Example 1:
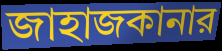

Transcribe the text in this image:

জাহাজকানার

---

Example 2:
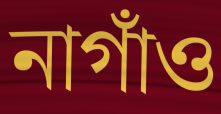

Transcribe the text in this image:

নাগাঁও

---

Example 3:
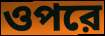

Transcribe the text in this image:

ওপরে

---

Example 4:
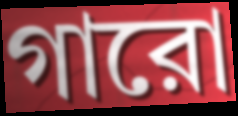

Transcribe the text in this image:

গারো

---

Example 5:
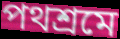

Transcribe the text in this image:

পথশ্রমে